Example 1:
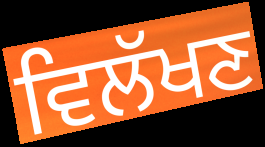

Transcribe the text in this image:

ਵਿਲੱਖਣ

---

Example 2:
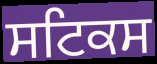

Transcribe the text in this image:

ਸਟਿਕਸ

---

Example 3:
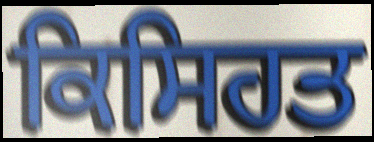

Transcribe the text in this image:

ਕਿਸਿਹਤ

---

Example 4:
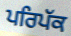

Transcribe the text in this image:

ਪਰਿਪੱਕ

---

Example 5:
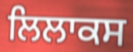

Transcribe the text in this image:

ਲਿਲਾਕਸ